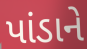
પાંડાને